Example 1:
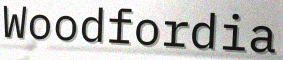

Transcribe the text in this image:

Woodfordia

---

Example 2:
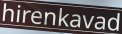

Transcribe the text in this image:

hirenkavad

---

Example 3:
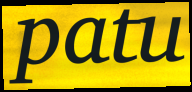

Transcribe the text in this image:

patu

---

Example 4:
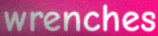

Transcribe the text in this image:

wrenches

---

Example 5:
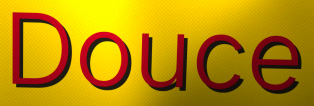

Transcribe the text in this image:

Douce